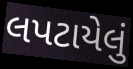
લપટાયેલું